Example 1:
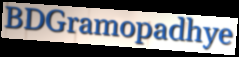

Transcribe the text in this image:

BDGramopadhye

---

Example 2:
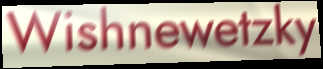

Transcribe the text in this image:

Wishnewetzky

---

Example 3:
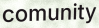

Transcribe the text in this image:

comunity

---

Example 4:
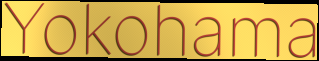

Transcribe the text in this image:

Yokohama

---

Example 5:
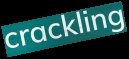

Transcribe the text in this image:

crackling